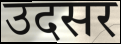
उदसर